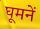
घूमनें